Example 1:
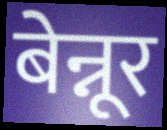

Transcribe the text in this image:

बेन्नूर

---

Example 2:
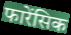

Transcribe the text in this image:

फारेंसिक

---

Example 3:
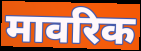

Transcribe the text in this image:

मावरिक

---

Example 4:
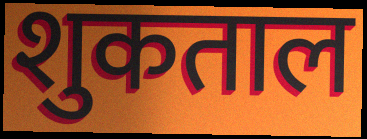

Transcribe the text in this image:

शुकताल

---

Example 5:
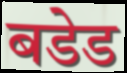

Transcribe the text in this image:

बडेड